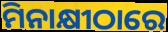
ମିନାକ୍ଷୀଠାରେ